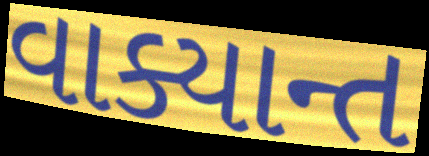
વાક્યાન્ત